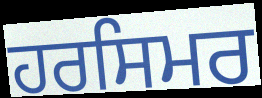
ਹਰਸਿਮਰ